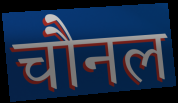
चौनल